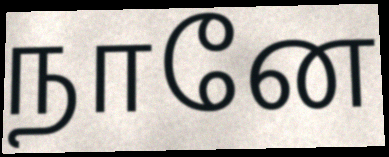
நானே